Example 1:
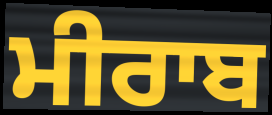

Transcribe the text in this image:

ਮੀਰਾਬ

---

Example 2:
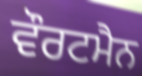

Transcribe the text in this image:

ਵੌਰਟਮੈਨ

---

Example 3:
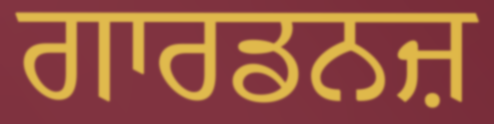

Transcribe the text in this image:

ਗਾਰਡਨਜ਼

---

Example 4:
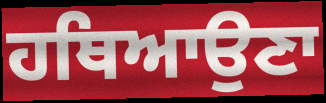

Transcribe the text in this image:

ਹਥਿਆਉਣਾ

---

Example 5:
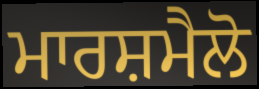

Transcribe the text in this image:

ਮਾਰਸ਼ਮੈਲੋ